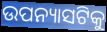
ଉପନ୍ୟାସଟିକୁ